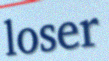
loser